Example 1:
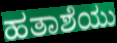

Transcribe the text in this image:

ಹತಾಶೆಯು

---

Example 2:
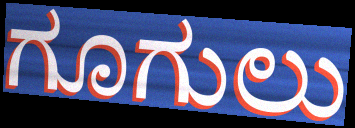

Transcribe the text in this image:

ಗೂಗುಲು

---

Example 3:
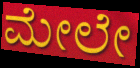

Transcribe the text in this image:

ಮೇಲೇ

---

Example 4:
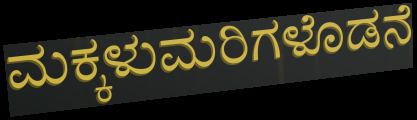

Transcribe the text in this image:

ಮಕ್ಕಳುಮರಿಗಳೊಡನೆ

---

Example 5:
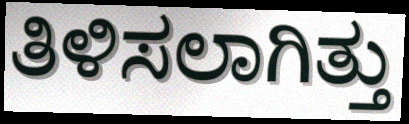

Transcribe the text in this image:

ತಿಳಿಸಲಾಗಿತ್ತು